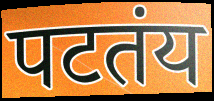
पटतंय